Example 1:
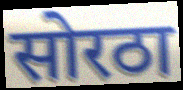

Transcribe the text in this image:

सोरठा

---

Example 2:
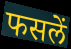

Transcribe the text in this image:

फसलें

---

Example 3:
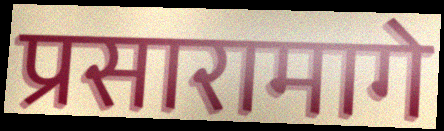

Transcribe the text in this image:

प्रसारामागे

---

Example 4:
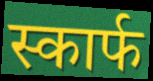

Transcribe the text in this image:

स्कार्फ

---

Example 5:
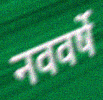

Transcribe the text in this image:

नववर्षे